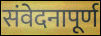
संवेदनापूर्ण